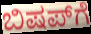
ಬಿಷಪ್‌ಗೆ